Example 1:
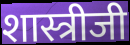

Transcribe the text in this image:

शास्त्रीजी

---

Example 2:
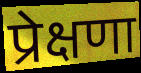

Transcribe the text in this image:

प्रेक्षणा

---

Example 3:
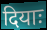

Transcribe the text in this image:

दियाः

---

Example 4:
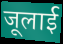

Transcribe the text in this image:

जूलाई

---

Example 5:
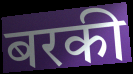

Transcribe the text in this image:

बरकी